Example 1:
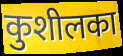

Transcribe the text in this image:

कुशीलका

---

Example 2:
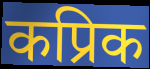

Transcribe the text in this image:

कप्रिक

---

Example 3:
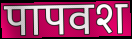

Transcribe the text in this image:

पापवश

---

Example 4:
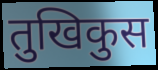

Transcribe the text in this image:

तुखिकुस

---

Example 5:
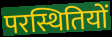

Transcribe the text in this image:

परस्थितियों